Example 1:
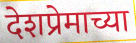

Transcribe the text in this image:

देशप्रेमाच्या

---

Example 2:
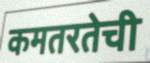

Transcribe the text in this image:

कमतरतेची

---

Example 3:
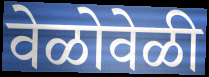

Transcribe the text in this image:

वेळोवेळी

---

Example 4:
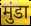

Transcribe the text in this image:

मुंडा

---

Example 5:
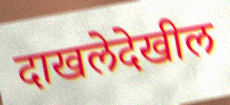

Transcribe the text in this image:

दाखलेदेखील